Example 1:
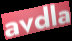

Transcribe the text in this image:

avdla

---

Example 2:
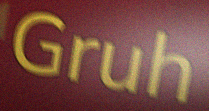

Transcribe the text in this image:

Gruh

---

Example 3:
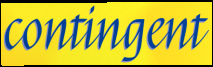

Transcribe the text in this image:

contingent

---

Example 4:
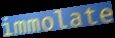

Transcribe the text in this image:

immolate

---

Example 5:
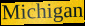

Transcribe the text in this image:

Michigan